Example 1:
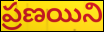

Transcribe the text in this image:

ప్రణయిని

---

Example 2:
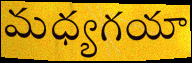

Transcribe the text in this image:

మధ్యగయా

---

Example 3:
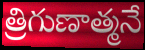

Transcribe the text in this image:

త్రిగుణాత్మనే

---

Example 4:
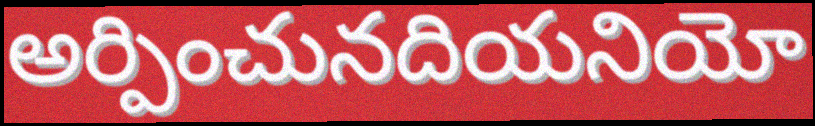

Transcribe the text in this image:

అర్పించునదియనియో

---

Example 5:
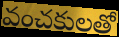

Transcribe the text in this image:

వంచకులతో